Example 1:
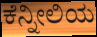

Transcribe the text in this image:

ಕೆನ್ನೀಲಿಯ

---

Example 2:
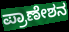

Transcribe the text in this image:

ಪ್ರಾಣೇಶನ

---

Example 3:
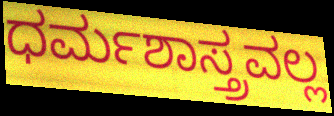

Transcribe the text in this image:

ಧರ್ಮಶಾಸ್ತ್ರವಲ್ಲ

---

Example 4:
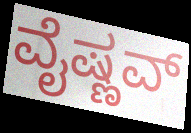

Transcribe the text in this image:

ವೈಷ್ಣವ್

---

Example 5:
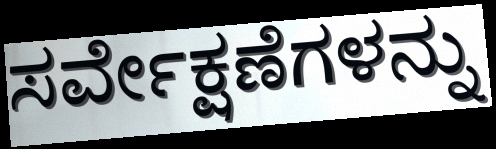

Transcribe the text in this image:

ಸರ್ವೇಕ್ಷಣೆಗಳನ್ನು